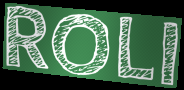
ROLI